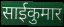
साईकुमार